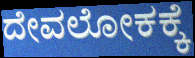
ದೇವಲೋಕಕ್ಕೆ